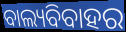
ବାଲ୍ୟବିବାହର